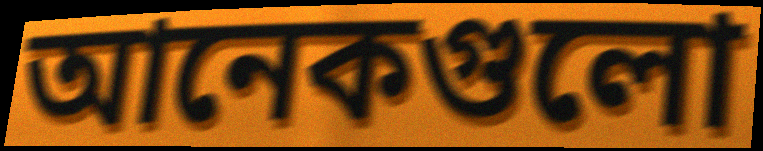
আনেকগুলো